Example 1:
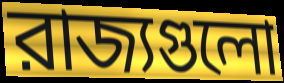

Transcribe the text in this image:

রাজ্যগুলো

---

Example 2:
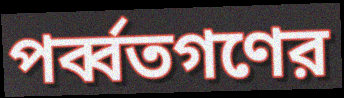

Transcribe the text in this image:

পর্ব্বতগণের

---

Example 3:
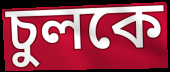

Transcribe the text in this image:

চুলকে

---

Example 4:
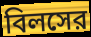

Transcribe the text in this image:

বিলসের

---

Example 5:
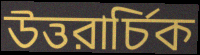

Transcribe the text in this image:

উত্তরার্চিক